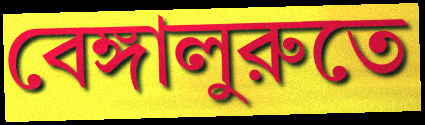
বেঙ্গালুরুতে